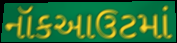
નૉકઆઉટમાં